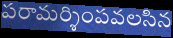
పరామర్శింపవలసిన